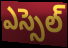
ఎస్సెల్